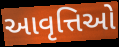
આવૃત્તિઓ